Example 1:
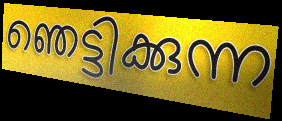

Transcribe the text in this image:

ഞെട്ടിക്കുന്ന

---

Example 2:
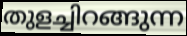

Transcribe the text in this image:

തുളച്ചിറങ്ങുന്ന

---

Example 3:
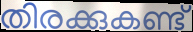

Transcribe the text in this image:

തിരക്കുകണ്ട്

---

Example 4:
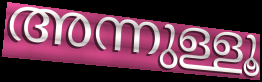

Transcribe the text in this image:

അന്നുള്ളൂ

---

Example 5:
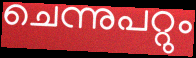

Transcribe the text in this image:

ചെന്നുപറ്റും